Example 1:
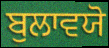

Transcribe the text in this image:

ਬੁਲਾਵਯੋ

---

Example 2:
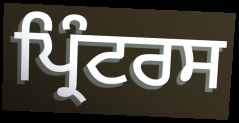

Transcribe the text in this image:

ਪ੍ਰਿੰਟਰਸ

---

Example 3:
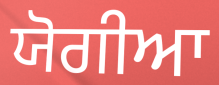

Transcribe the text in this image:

ਯੋਗੀਆ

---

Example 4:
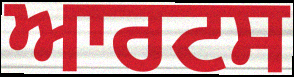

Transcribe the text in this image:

ਆਰਟਸ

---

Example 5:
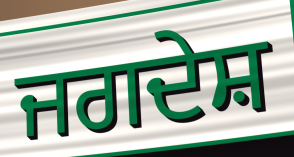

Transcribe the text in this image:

ਜਗਦੇਸ਼